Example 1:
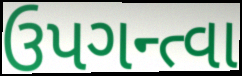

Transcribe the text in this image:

ઉપગન્ત્વા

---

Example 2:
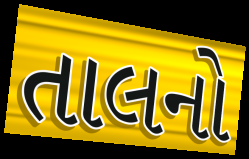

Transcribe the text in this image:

તાલનો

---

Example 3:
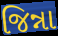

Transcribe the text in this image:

જિન્ના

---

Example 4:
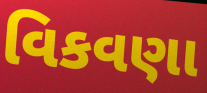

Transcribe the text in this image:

વિકવણા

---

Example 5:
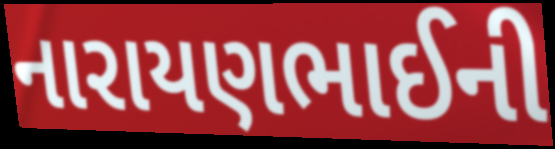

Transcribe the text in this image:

નારાયણભાઈની